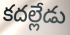
కదల్లేడు